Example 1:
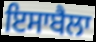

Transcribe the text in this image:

ਇਸਾਬੈਲਾ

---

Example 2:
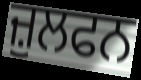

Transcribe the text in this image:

ਜ਼ੁਲਫਨ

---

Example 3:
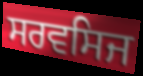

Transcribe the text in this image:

ਸਰਵਸਿਜ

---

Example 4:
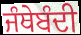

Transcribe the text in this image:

ਜੰਥੇਬੰਦੀ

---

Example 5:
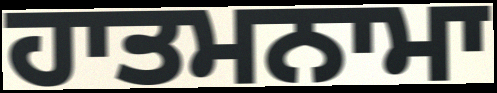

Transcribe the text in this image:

ਹਾਤਮਨਾਮਾ